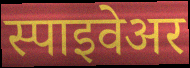
स्पाइवेअर